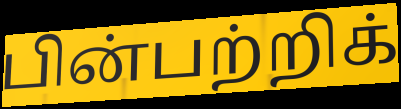
பின்பற்றிக்